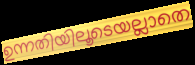
ഉന്നതിയിലൂടെയല്ലാതെ